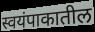
स्वयंपाकातील